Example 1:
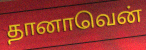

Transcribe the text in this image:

தானாவென்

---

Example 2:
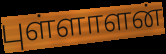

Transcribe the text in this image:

புள்ளாளன்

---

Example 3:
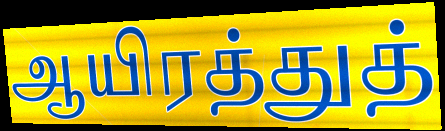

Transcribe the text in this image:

ஆயிரத்துத்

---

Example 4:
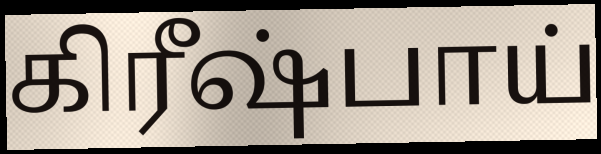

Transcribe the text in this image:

கிரீஷ்பாய்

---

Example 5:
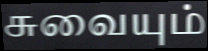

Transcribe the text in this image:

சுவையும்